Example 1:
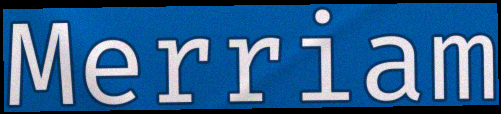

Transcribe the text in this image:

Merriam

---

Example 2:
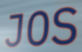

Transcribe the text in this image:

JOS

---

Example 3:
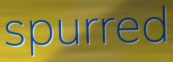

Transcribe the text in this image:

spurred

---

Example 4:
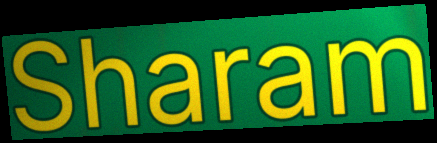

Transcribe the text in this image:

Sharam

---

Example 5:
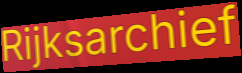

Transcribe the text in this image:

Rijksarchief